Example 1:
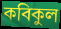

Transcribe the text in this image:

কবিকুল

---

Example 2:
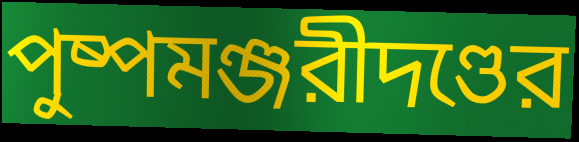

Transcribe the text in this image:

পুষ্পমঞ্জরীদণ্ডের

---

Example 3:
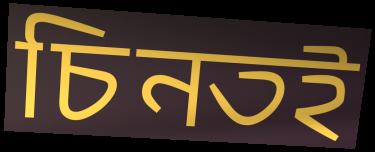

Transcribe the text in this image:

চিনতই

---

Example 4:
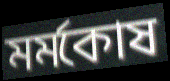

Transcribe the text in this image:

মর্মকোষ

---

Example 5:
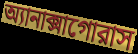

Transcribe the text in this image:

অ্যানাক্সাগোরাস